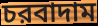
চরবাদাম